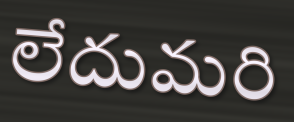
లేదుమరి